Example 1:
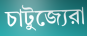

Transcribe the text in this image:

চাটুজ্যেরা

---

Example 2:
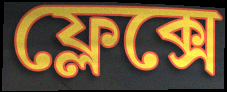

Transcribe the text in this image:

ফ্লেক্সে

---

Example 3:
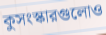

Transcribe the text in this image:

কুসংস্কারগুলোও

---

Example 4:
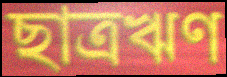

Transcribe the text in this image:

ছাত্রঋণ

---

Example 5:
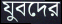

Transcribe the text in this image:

যুবদের